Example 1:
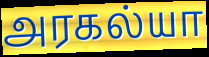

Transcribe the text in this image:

அரகல்யா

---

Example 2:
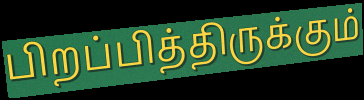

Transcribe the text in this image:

பிறப்பித்திருக்கும்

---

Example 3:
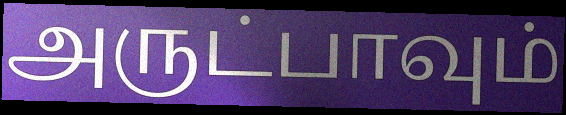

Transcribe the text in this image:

அருட்பாவும்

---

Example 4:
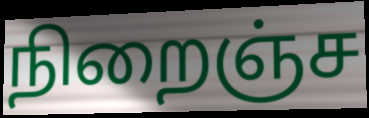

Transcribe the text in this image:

நிறைஞ்ச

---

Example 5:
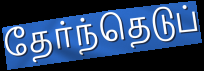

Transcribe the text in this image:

தேர்ந்தெடுப்